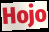
Hojo